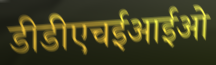
डीडीएचईआईओ